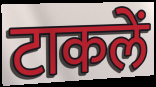
टाकलें